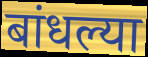
बांधल्या